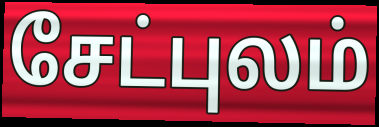
சேட்புலம்